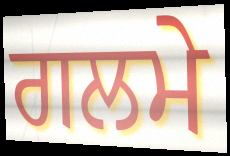
ਗਲਮੇ